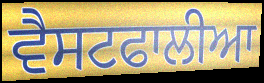
ਵੈਸਟਫਾਲੀਆ